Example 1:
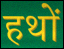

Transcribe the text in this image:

हथों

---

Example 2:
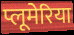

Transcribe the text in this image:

प्लूमेरिया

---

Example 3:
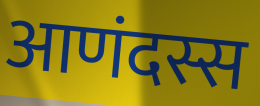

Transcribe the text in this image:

आणंदस्स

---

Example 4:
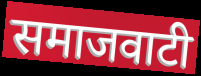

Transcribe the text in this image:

समाजवाटी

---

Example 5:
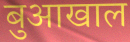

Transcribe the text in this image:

बुआखाल